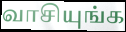
வாசியுங்க